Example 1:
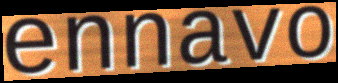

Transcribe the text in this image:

ennavo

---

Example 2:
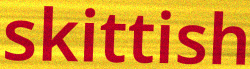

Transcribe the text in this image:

skittish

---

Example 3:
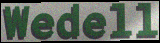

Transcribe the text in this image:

Wedell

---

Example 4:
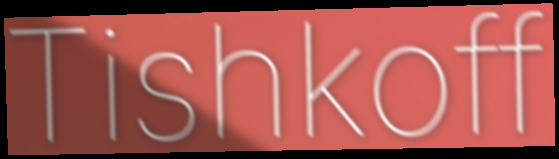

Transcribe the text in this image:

Tishkoff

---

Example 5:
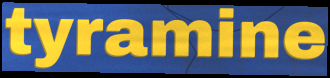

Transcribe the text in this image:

tyramine